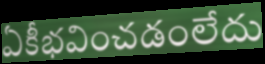
ఏకీభవించడంలేదు